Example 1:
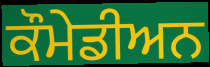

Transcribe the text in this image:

ਕੌਮੇਡੀਅਨ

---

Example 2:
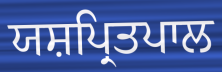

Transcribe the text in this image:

ਯਸ਼ਪ੍ਰਿਤਪਾਲ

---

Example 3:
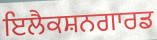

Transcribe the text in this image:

ਇਲੈਕਸ਼ਨਗਾਰਡ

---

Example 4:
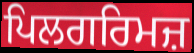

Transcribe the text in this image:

ਪਿਲਗਰਿਮਜ਼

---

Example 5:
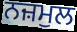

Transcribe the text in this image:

ਨਜ਼ਮੁਲ